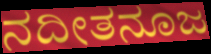
ನದೀತನೂಜ